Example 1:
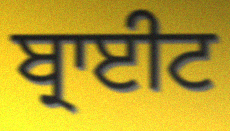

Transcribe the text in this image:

ਬ੍ਰਾਈਟ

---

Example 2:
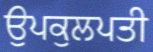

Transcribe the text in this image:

ਉਪਕੁਲਪਤੀ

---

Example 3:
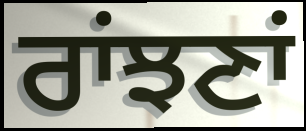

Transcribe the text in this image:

ਰਾਂਝਣਾਂ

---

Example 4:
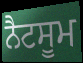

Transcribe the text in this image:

ਨੈਟਸੂਮ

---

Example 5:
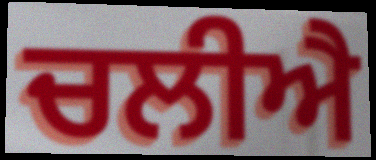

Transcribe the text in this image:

ਚਲੀਐ